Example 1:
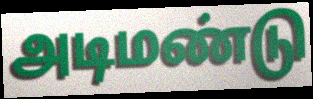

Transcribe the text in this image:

அடிமண்டு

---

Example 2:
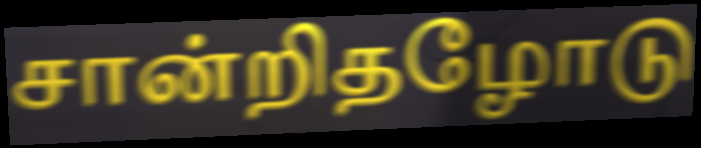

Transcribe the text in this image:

சான்றிதழோடு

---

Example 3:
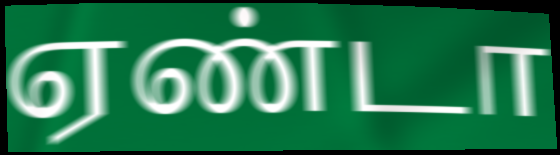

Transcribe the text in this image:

ஏண்டா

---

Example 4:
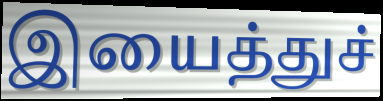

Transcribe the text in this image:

இயைத்துச்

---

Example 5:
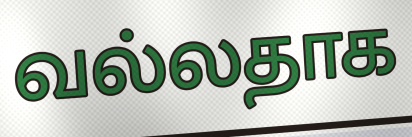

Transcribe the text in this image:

வல்லதாக